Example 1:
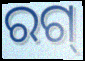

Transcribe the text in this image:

ରଗ୍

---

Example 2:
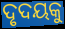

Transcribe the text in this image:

ଦୃଦୟକୁ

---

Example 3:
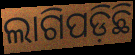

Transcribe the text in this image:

ଲାଗିପଡ଼ିଛି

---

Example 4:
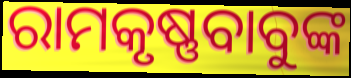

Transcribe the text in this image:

ରାମକୃଷ୍ଣବାବୁଙ୍କ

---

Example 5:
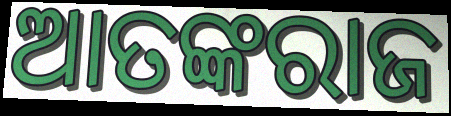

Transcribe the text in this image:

ଆତଙ୍କରାଜ